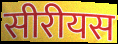
सीरीयस